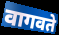
वागवते